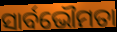
ସାର୍ବଭୌମତା